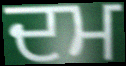
ਦਮ